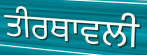
ਤੀਰਥਾਵਲੀ